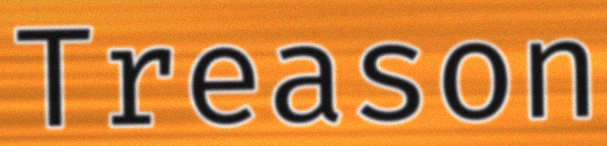
Treason